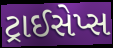
ટ્રાઈસેપ્સ